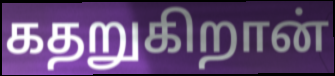
கதறுகிறான்